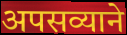
अपसव्याने